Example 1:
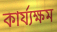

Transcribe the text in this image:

কাৰ্য্যক্ষম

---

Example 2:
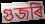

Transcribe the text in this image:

গুজৰি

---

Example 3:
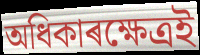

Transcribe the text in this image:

অধিকাৰক্ষেত্ৰই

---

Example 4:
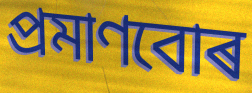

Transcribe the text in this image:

প্ৰমাণবোৰ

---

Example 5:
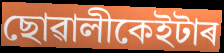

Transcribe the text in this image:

ছোৱালীকেইটাৰ